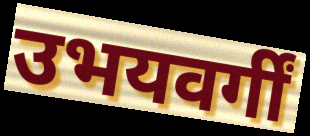
उभयवर्गीं